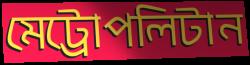
মেট্ৰোপলিটান